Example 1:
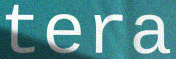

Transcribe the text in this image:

tera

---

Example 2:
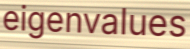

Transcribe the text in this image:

eigenvalues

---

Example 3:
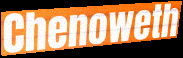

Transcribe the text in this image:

Chenoweth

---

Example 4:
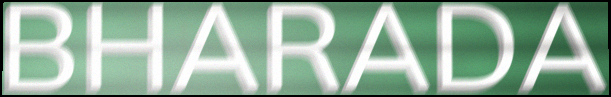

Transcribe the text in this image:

BHARADA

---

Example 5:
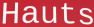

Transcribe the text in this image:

Hauts